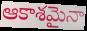
ఆకాశమైనా